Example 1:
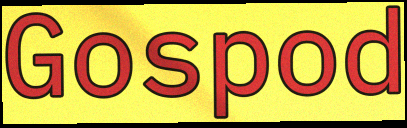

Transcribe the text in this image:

Gospod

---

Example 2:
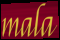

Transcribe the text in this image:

mala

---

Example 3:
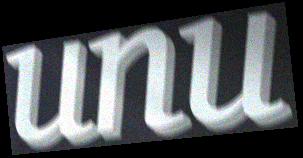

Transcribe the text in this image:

unu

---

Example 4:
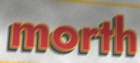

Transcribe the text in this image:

morth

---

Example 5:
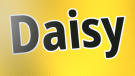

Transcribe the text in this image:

Daisy